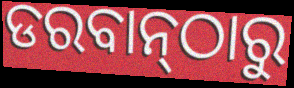
ଡରବାନ୍‌ଠାରୁ